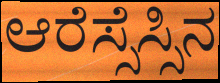
ಆರೆಸ್ಸೆಸ್ಸಿನ